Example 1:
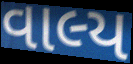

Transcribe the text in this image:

વાલ્ય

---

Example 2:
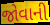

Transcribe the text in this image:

જોવાની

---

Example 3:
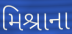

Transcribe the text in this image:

મિશ્રાના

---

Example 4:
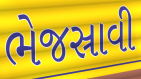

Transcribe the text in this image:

ભેજસ્રાવી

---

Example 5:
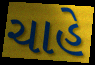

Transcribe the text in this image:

ચાહે